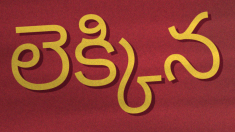
లెక్కిన